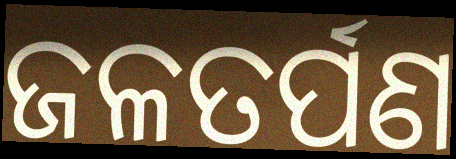
ଜଳତର୍ପଣ